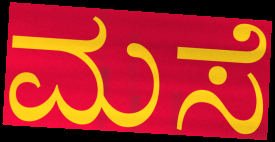
ಮಸೆ